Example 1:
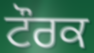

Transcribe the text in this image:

ਟੌਰਕ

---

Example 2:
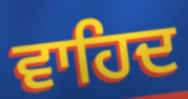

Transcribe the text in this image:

ਵਾਹਿਦ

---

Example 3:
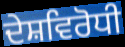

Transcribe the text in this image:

ਦੇਸ਼ਵਿਰੋਧੀ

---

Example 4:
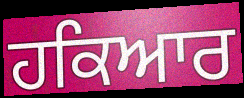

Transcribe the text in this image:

ਹਕਿਆਰ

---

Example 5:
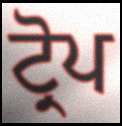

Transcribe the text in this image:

ਟ੍ਰੋਪ